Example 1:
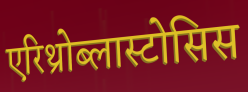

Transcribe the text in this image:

एरिथ्रोब्लास्टोसिस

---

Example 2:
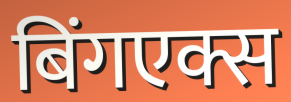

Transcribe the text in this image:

बिंगएक्स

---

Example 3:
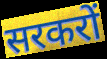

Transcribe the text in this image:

सरकरों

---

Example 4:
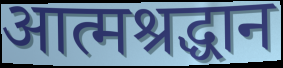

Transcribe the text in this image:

आत्मश्रद्धान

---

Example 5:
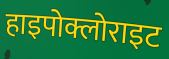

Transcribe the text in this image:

हाइपोक्लोराइट